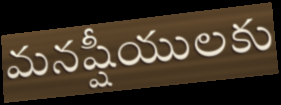
మనష్షీయులకు